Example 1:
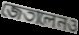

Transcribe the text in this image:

জেতালেনও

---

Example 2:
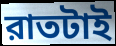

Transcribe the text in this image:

রাতটাই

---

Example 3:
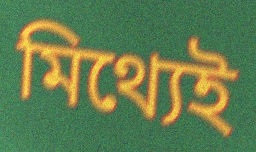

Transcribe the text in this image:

মিথ্যেই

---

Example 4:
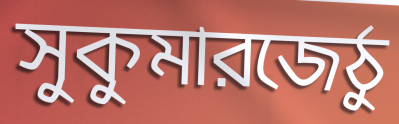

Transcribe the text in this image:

সুকুমারজেঠু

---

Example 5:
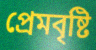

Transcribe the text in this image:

প্রেমবৃষ্টি